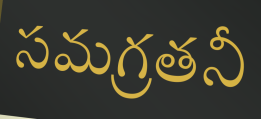
సమగ్రతనీ